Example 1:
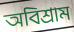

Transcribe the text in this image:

অবিশ্রাম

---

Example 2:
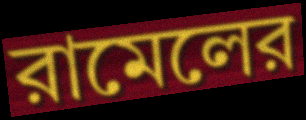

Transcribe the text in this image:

রামেলের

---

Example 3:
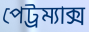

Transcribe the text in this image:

পেট্রম্যাক্স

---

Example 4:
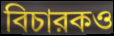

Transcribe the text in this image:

বিচারকও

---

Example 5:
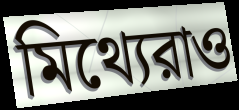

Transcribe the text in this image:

মিথ্যেরাও